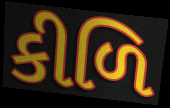
કીળિ